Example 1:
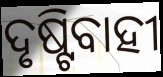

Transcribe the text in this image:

ଦୃଷ୍ଟିବାହୀ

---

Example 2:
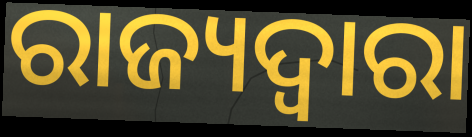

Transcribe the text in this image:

ରାଜ୍ୟଦ୍ୱାରା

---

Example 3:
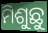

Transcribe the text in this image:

ମିଶୁଛୁ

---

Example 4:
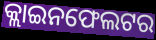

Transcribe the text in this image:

କ୍ଲାଇନଫେଲଟର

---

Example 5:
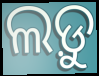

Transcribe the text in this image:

ଲଡ଼ୁ